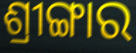
ଶ୍ରୀଙ୍ଗାର